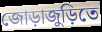
জোড়াজুড়িতে